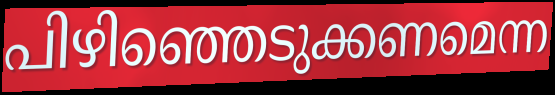
പിഴിഞ്ഞെടുക്കണമെന്ന